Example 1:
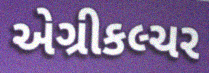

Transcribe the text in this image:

એગ્રીકલ્ચર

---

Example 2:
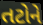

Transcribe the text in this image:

તટોને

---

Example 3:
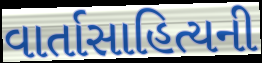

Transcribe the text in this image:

વાર્તાસાહિત્યની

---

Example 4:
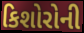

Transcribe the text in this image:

કિશોરોની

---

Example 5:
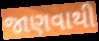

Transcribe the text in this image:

જાણવાથી